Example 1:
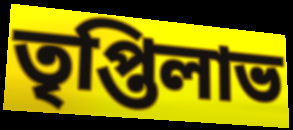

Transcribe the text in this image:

তৃপ্তিলাভ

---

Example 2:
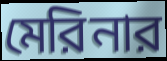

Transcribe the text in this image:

মেরিনার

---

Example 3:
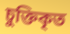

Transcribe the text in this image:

চুক্তিকৃত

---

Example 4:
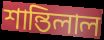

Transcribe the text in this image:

শান্তিলাল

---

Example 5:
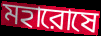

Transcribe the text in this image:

মহারোষে